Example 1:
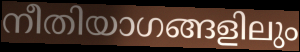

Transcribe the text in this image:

നീതിയാഗങ്ങളിലും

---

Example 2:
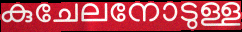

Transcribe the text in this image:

കുചേലനോടുള്ള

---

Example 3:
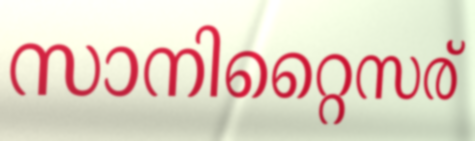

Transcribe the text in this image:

സാനിറ്റൈസര്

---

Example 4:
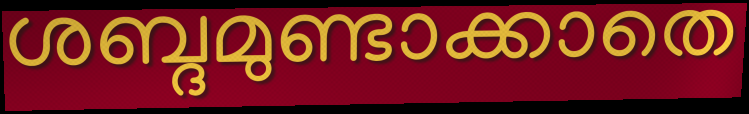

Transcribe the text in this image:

ശബ്ദമുണ്ടാക്കാതെ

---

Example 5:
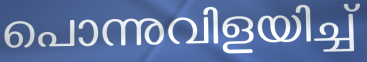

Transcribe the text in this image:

പൊന്നുവിളയിച്ച്